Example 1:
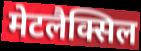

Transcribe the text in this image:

मेटलैक्सिल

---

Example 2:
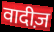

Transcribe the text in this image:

वादीज़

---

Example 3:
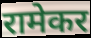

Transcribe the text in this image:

रामेकर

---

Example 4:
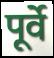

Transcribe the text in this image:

पूर्वे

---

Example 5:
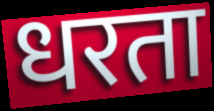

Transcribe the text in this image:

धरता